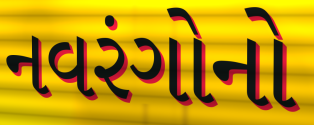
નવરંગોનો